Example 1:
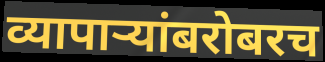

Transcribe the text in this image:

व्यापाऱ्यांबरोबरच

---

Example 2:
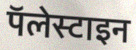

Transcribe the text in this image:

पॅलेस्टाइन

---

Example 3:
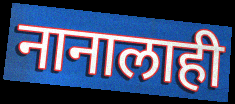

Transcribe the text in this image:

नानालाही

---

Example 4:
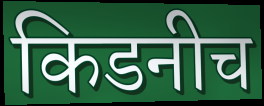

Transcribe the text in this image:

किडनीच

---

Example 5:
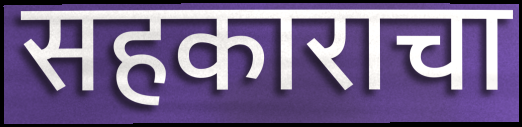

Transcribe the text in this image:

सहकाराचा